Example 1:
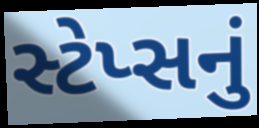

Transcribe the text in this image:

સ્ટેપ્સનું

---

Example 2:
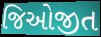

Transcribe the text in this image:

જિઓજીત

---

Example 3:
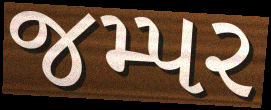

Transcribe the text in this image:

જમ્પર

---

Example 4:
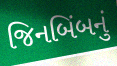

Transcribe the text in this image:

જિનબિંબનું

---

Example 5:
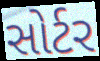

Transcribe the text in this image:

સોર્ટર